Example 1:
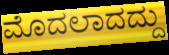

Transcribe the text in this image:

ಮೊದಲಾದದ್ದು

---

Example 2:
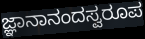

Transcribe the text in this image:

ಜ್ಞಾನಾನಂದಸ್ವರೂಪ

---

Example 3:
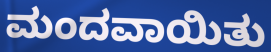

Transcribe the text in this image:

ಮಂದವಾಯಿತು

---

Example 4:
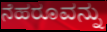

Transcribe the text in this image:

ನೆಹರೂವನ್ನು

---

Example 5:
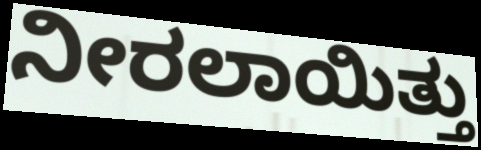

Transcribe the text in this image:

ನೀರಲಾಯಿತ್ತು